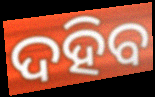
ଦହିବ